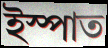
ইস্পাত